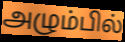
அழும்பில்